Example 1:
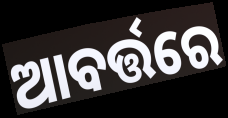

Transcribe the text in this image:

ଆବର୍ତ୍ତରେ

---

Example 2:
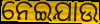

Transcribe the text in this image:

ନେଇଯାଉ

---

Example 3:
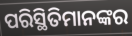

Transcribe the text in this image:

ପରିସ୍ଥିତିମାନଙ୍କର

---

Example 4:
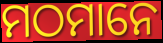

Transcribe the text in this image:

ମଠମାନେ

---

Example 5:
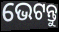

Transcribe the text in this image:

ଭେଟନ୍ତୁ